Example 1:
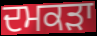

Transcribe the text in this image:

ਦਮਕੜਾ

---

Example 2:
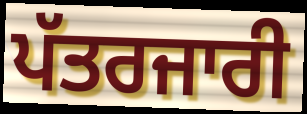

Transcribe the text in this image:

ਪੱਤਰਜਾਰੀ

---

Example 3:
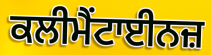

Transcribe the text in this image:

ਕਲੀਮੈਂਟਾਈਨਜ਼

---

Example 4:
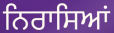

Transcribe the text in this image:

ਨਿਰਾਸਿਆਂ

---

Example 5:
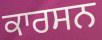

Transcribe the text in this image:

ਕਾਰਸਨ